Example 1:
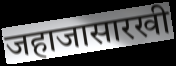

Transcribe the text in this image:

जहाजासारखी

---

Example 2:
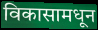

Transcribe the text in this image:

विकासामधून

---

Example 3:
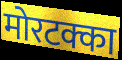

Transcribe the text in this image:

मोरटक्का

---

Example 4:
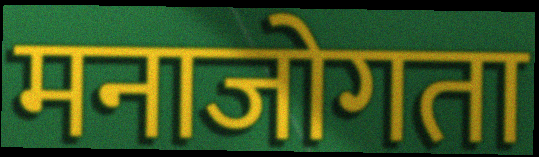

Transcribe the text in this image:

मनाजोगता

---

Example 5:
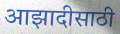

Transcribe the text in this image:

आझादीसाठी